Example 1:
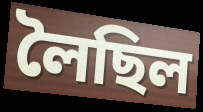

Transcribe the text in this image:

লৈছিল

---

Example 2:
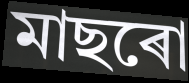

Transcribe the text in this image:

মাছৰো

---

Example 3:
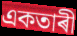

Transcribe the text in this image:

একতাৰী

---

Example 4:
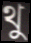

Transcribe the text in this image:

থু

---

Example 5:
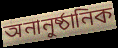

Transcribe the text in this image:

অনানুষ্ঠানিক